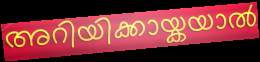
അറിയിക്കായ്കയാൽ